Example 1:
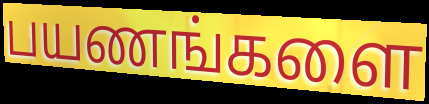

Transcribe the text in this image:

பயணங்களை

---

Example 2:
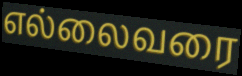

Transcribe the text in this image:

எல்லைவரை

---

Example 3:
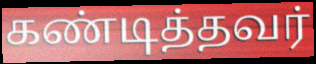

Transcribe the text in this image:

கண்டித்தவர்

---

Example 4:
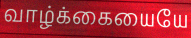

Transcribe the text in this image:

வாழ்க்கையையே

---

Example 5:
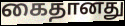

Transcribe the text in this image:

கைதானது